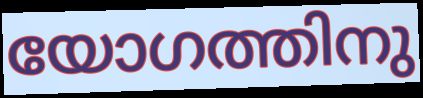
യോഗത്തിനു